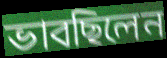
ভাবছিলেন